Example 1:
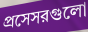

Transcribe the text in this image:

প্রসেসরগুলো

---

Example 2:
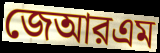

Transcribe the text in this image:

জেআরএম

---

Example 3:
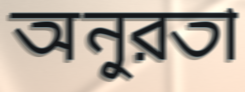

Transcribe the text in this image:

অনুরতা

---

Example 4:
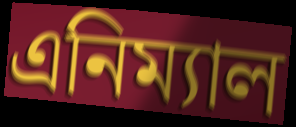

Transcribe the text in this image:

এনিম্যাল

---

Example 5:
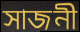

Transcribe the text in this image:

সাজনী